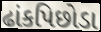
ઢાંકપિછોડા